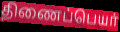
திணைப்பெயர்